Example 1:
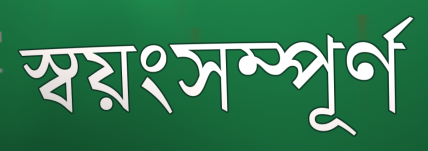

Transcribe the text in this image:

স্বয়ংসম্পূর্ণ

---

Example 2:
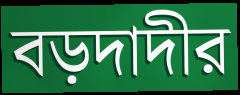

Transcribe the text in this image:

বড়দাদীর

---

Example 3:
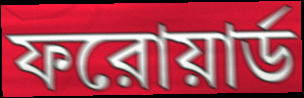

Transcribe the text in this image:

ফরোয়ার্ড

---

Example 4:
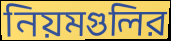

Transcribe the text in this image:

নিয়মগুলির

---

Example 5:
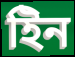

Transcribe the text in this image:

ইিন